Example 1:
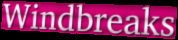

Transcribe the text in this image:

Windbreaks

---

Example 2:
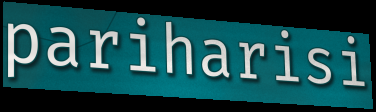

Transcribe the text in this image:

pariharisi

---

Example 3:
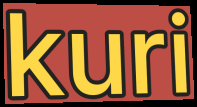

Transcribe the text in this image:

kuri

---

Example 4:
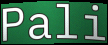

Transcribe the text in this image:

Pali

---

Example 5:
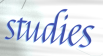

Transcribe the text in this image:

studies